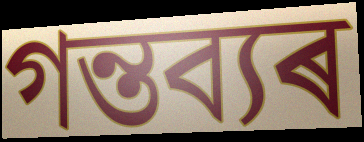
গন্তব্যৰ